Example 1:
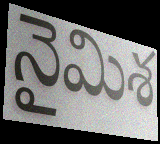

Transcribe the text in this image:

నైమిశ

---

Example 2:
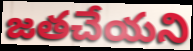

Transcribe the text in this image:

జతచేయని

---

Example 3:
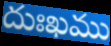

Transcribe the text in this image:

దుఃఖము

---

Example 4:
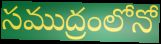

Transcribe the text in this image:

సముద్రంలోనో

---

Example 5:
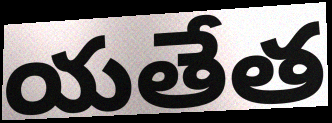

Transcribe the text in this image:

యతేత